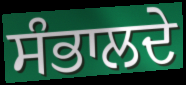
ਸੰਭਾਲਦੇ